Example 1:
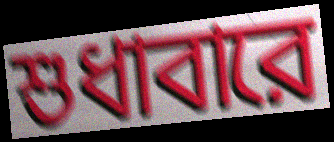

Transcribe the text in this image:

শুধাবারে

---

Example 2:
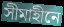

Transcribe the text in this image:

সীমাহীনে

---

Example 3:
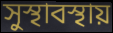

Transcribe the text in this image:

সুস্থাবস্থায়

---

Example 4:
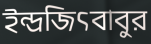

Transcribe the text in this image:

ইন্দ্রজিৎবাবুর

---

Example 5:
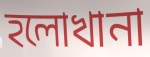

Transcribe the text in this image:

হলোখানা